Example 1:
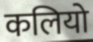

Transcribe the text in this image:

कलियो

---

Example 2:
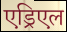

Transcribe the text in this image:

एड्रिएल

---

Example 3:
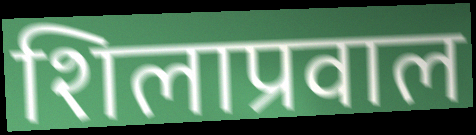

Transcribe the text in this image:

शिलाप्रवाल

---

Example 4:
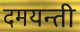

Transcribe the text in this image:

दमयन्ती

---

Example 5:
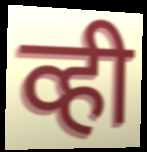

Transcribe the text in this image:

व्‍ही